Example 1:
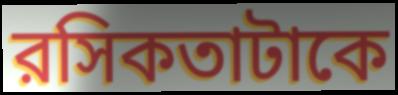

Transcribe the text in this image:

রসিকতাটাকে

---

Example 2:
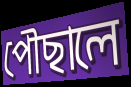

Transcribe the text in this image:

পৌছালে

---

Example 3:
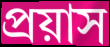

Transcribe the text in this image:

প্রয়াস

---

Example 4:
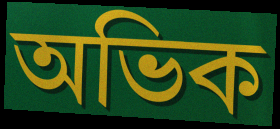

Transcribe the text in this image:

অভিক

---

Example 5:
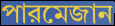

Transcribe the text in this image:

পারমেজান